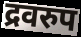
द्रवरुप